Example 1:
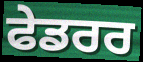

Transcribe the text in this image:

ਫੇਡਰਰ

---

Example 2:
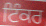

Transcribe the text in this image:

ਟਿੰਕਰ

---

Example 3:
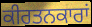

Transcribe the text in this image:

ਕੀਰਤਨਕਾਰਾਂ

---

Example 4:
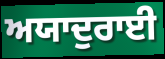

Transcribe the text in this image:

ਅਯਾਦੁਰਾਈ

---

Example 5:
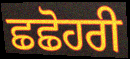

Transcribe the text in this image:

ਛਛੋਹਰੀ